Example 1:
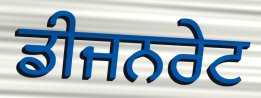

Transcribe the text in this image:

ਡੀਜਨਰੇਟ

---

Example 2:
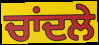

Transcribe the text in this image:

ਚਾਂਦਲੇ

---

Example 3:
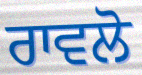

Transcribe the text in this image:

ਰਾਵਲੋ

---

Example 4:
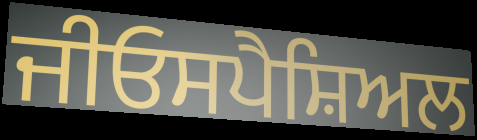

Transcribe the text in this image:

ਜੀਓਸਪੈਸ਼ਿਅਲ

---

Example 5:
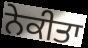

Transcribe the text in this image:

ਨੇਕੀਤਾ